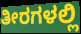
ತೀರಗಳಲ್ಲಿ